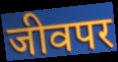
जीवपर